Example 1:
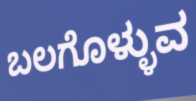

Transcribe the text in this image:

ಬಲಗೊಳ್ಳುವ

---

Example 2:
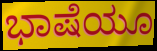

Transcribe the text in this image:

ಭಾಷೆಯೂ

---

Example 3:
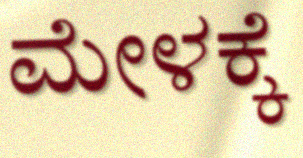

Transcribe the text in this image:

ಮೇಳಕ್ಕೆ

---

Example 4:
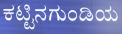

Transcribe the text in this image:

ಕಟ್ಟಿನಗುಂಡಿಯ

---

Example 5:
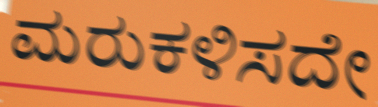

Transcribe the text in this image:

ಮರುಕಳಿಸದೇ